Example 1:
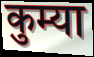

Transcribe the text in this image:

कुम्या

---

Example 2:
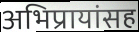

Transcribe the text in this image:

अभिप्रायांसह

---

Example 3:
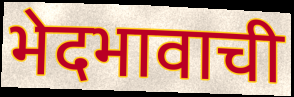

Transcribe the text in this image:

भेदभावाची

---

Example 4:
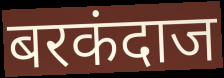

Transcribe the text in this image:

बरकंदाज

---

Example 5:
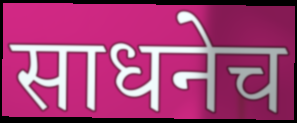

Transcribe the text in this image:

साधनेच